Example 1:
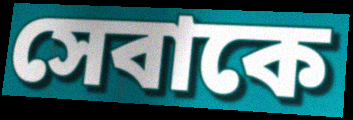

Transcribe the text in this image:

সেবাকে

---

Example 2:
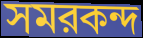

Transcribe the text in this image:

সমরকন্দ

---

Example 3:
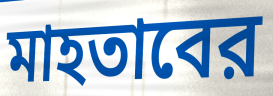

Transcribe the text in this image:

মাহতাবের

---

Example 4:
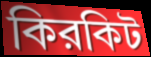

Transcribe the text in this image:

কিরকিট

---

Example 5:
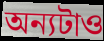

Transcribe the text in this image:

অন্যটাও